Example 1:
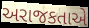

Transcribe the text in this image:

અરાજકતાએ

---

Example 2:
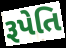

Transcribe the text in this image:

રૂપેતિ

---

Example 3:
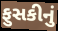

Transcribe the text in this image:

ફુસકીનું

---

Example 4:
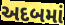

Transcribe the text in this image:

અદબમાં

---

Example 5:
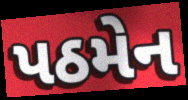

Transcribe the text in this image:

પઠમેન